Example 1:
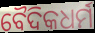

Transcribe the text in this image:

ବୈଦିକଧର୍ମ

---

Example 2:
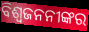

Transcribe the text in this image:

ବିଶ୍ୱଜନନୀଙ୍କର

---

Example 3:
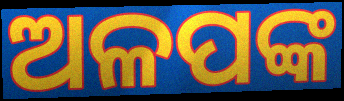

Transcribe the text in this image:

ଅଳପଙ୍କ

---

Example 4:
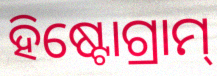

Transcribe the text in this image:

ହିଷ୍ଟୋଗ୍ରାମ୍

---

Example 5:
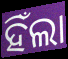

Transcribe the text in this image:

ହିଁଲା